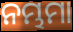
ନମ୍ଭମା